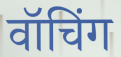
वॉचिंग